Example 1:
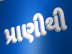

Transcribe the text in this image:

પ્રાણીથી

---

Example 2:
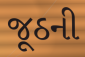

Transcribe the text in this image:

જૂઠની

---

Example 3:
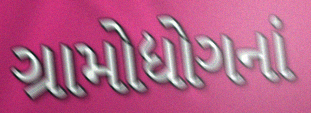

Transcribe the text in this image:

ગ્રામોદ્યોગનાં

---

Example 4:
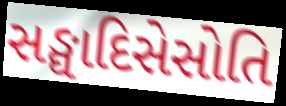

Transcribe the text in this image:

સઙ્ઘાદિસેસોતિ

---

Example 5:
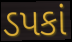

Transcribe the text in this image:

ડપકાં